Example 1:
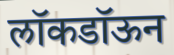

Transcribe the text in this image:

लॉकडॉऊन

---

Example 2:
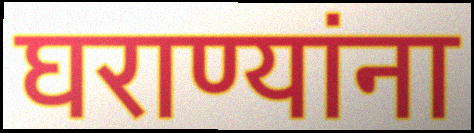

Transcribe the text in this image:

घराण्यांना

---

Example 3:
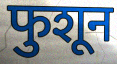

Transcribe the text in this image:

फुशून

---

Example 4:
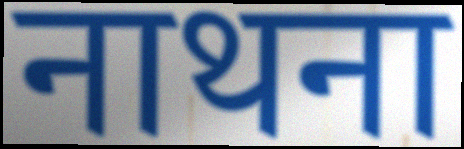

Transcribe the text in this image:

नाथना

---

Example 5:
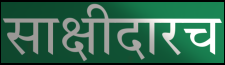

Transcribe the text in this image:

साक्षीदारच